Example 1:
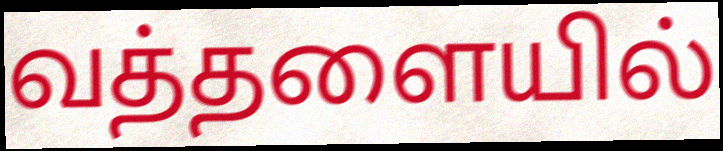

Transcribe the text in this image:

வத்தளையில்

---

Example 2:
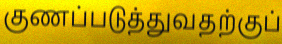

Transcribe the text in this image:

குணப்படுத்துவதற்குப்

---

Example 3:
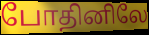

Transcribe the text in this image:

போதினிலே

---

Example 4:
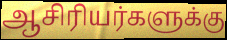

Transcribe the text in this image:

ஆசிரியர்களுக்கு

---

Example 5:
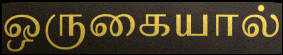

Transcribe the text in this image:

ஒருகையால்